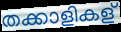
തക്കാളികള്